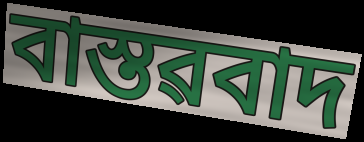
বাস্তৱবাদ